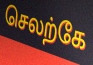
செலற்கே